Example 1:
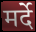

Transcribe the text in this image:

मर्दे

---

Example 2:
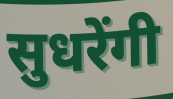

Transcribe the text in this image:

सुधरेंगी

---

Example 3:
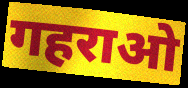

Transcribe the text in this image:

गहराओ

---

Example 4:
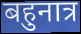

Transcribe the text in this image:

बहुनात्र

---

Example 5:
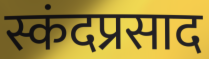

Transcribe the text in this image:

स्कंदप्रसाद